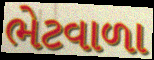
ભેટવાળા